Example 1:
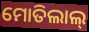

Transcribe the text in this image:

ମୋତିଲାଲ୍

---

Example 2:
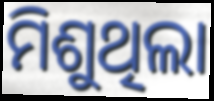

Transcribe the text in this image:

ମିଶୁଥିଲା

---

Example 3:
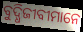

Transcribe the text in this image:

ବୁଦ୍ଧିଜୀବୀମାନେ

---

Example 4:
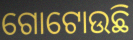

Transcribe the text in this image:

ଗୋଟୋଉଛି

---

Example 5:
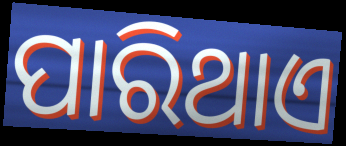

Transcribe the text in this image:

ପାରିଥାଏ